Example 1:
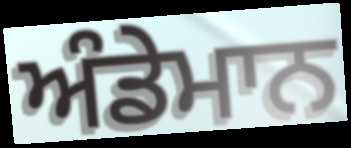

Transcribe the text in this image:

ਅੰਡੇਮਾਨ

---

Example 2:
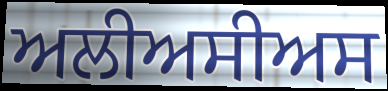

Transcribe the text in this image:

ਅਲੀਅਸੀਅਸ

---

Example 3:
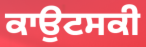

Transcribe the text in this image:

ਕਾਉਟਸਕੀ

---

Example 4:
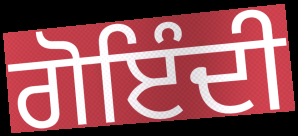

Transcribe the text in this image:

ਗੋਇੰਦੀ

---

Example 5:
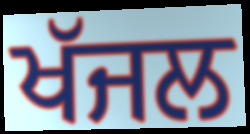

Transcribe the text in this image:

ਖੱਜਲ